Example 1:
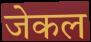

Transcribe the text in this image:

जेकल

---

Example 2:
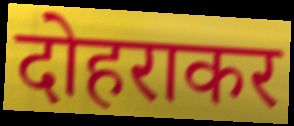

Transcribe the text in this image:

दोहराकर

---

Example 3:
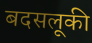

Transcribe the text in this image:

बदसलूकी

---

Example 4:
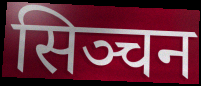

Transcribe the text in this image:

सिञ्चन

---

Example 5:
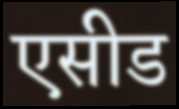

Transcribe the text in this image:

एसीड